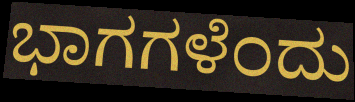
ಭಾಗಗಳೆಂದು